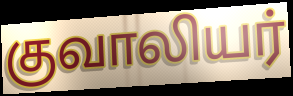
குவாலியர்